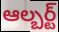
ఆల్బర్ట్